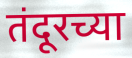
तंदूरच्या